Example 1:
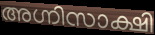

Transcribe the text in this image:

അഗ്നിസാക്ഷി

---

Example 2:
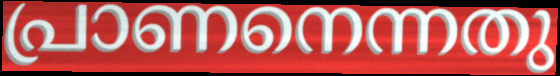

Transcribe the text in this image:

പ്രാണനെന്നതു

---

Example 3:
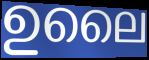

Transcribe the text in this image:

ഉലൈ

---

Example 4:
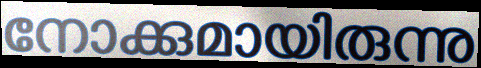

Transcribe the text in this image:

നോക്കുമായിരുന്നു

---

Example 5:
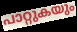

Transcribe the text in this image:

പാറ്റുകയും